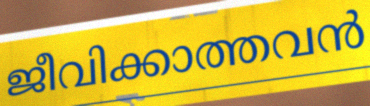
ജീവിക്കാത്തവൻ